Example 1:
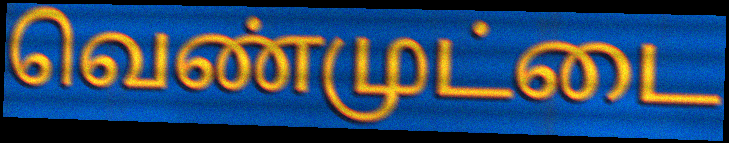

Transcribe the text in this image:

வெண்முட்டை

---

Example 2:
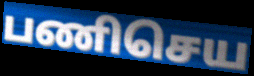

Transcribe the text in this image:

பணிசெய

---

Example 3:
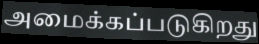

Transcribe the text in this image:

அமைக்கப்படுகிறது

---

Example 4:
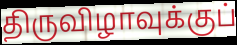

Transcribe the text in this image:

திருவிழாவுக்குப்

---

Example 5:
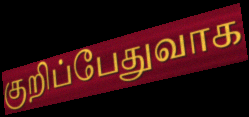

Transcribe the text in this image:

குறிப்பேதுவாக